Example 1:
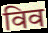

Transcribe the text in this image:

विव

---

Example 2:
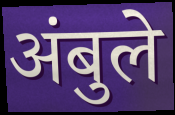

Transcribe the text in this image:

अंबुले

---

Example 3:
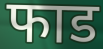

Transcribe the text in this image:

फाड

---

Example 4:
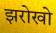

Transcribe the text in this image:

झरोखो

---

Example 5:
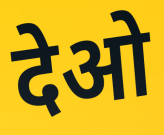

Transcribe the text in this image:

देओ